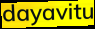
dayavitu